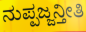
ನುಪ್ಪಜ್ಜನ್ತೀತಿ